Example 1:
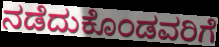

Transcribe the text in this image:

ನಡೆದುಕೊಂಡವರಿಗೆ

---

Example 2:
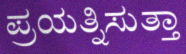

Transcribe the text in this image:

ಪ್ರಯತ್ನಿಸುತ್ತಾ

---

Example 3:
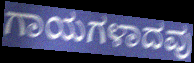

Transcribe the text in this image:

ಗಾಯಗಳಾದವು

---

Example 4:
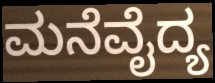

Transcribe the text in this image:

ಮನೆವೈದ್ಯ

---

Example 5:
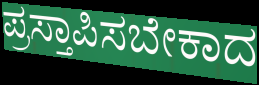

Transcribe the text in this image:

ಪ್ರಸ್ತಾಪಿಸಬೇಕಾದ